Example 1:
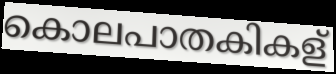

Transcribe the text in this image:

കൊലപാതകികള്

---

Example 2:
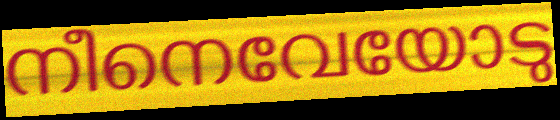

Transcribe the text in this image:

നീനെവേയോടു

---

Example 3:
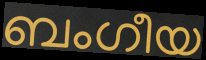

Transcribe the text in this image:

ബംഗീയ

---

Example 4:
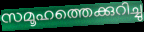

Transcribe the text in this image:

സമൂഹത്തെക്കുറിച്ചു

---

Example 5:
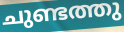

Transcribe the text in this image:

ചുണ്ടത്തു